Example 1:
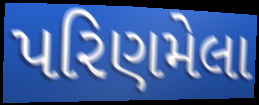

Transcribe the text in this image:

પરિણમેલા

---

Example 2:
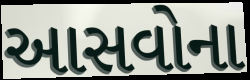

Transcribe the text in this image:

આસવોના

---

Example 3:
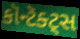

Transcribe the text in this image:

કૉન્ટૅક્ટ્સ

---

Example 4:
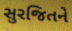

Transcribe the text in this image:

સુરજિતને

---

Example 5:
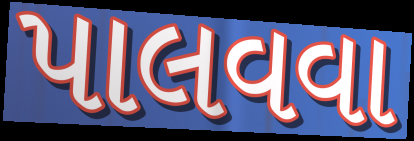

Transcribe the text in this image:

પાલવવા